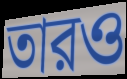
তারও